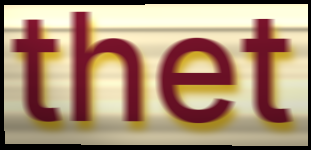
thet